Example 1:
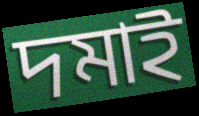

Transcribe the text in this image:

দমাই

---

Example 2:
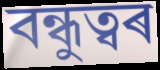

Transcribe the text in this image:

বন্ধুত্বৰ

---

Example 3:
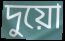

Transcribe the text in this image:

দুয়ো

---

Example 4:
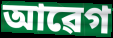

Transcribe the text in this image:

আৱেগ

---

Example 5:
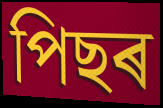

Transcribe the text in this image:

পিছৰ